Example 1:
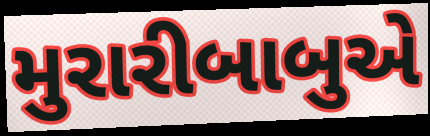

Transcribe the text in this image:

મુરારીબાબુએ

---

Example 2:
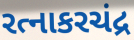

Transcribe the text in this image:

રત્નાકરચંદ્ર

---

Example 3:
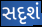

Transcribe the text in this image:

સદૃશં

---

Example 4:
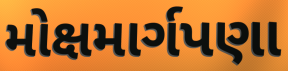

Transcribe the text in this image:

મોક્ષમાર્ગપણા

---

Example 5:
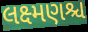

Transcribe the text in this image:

લક્ષ્મણશ્ચ